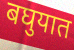
बघुयात